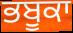
ਭਬੂਕਾ